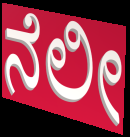
ನೆಲೀ